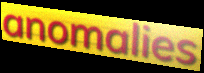
anomalies